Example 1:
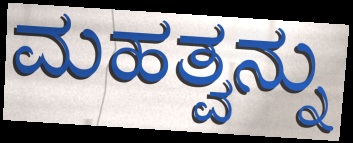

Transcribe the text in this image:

ಮಹತ್ವನ್ನು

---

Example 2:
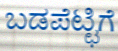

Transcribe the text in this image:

ಬಡಪೆಟ್ಟಿಗೆ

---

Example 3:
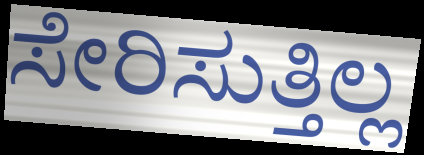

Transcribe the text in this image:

ಸೇರಿಸುತ್ತಿಲ್ಲ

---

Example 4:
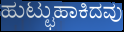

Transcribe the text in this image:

ಹುಟ್ಟುಹಾಕಿದವು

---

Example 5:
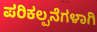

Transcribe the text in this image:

ಪರಿಕಲ್ಪನೆಗಳಾಗಿ